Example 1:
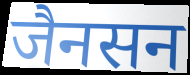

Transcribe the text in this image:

जैनसन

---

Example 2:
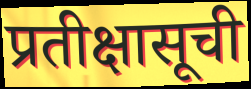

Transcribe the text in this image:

प्रतीक्षासूची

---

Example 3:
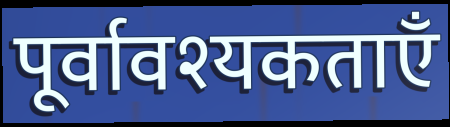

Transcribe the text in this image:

पूर्वावश्यकताएँ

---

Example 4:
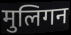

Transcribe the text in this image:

मुलिगन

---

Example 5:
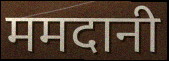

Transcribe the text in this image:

ममदानी